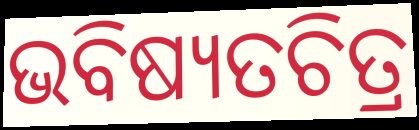
ଭବିଷ୍ୟତଚିତ୍ର